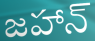
జహాన్